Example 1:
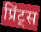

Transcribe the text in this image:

प्रिंट्स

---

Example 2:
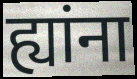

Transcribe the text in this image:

ह्यांना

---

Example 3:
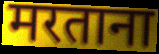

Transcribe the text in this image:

मरताना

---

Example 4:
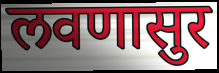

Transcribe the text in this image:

लवणासुर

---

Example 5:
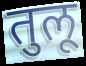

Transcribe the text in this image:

तुलू